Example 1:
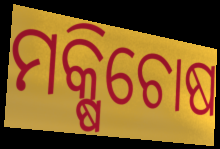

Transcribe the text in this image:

ମକ୍ଷିଚୋଷ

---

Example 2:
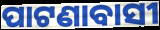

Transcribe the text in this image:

ପାଟଣାବାସୀ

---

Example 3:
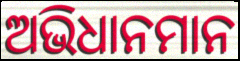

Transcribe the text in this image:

ଅଭିଧାନମାନ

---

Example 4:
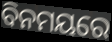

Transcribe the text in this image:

ବିନମୟରେ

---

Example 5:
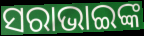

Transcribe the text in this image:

ସରାଭାଇଙ୍କ